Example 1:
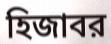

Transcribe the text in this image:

হিজাবর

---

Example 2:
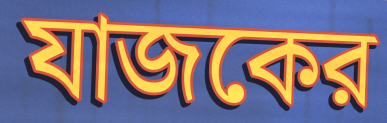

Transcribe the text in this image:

যাজকের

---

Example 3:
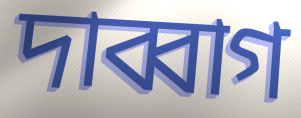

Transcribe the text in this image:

দাব্বাগ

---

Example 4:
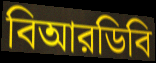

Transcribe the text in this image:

বিআরডিবি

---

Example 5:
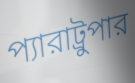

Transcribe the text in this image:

প্যারাট্রুপার